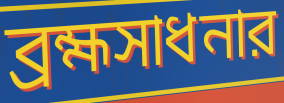
ব্রহ্মসাধনার